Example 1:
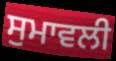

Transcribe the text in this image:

ਸੁਮਾਵਲੀ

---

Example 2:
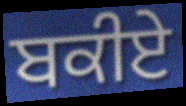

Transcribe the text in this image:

ਬਕੀਏ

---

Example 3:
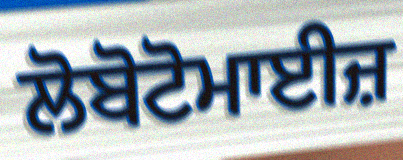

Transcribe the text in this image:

ਲੋਬੋਟੋਮਾਈਜ਼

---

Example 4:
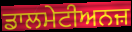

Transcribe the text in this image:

ਡਾਲਮੇਟੀਅਨਜ਼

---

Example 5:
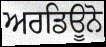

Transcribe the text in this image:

ਅਰਡਿਊਨੋ